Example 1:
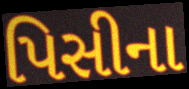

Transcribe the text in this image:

પિસીના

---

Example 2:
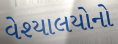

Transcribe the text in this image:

વેશ્યાલયોનો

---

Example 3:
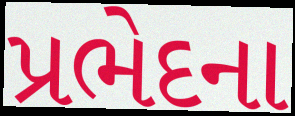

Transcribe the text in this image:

પ્રભેદના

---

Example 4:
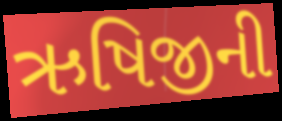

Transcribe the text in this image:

ઋષિજીની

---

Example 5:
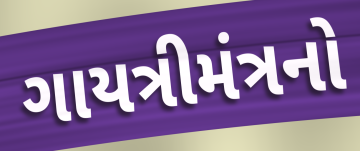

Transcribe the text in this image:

ગાયત્રીમંત્રનો